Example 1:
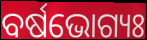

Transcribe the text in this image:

ବର୍ଷଭୋଗ୍ୟଃ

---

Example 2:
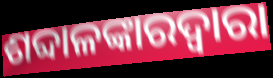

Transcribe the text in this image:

ଶବ୍ଦାଳଙ୍କାରଦ୍ୱାରା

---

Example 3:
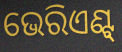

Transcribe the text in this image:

ଭେରିଏଣ୍ଟ୍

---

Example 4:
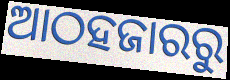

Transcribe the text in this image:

ଆଠହଜାରରୁ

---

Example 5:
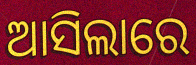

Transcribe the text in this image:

ଆସିଲାରେ